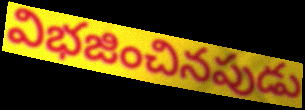
విభజించినపుడు